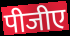
पीजीए